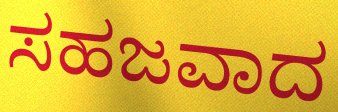
ಸಹಜವಾದ